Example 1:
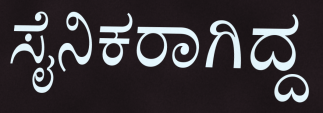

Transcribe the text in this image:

ಸೈನಿಕರಾಗಿದ್ದ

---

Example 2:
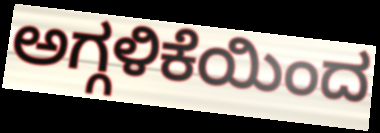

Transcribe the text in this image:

ಅಗ್ಗಳಿಕೆಯಿಂದ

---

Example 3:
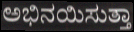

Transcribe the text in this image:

ಅಭಿನಯಿಸುತ್ತಾ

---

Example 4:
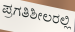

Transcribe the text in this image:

ಪ್ರಗತಿಶೀಲರಲ್ಲಿ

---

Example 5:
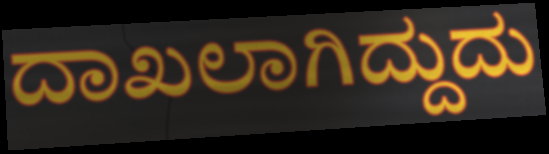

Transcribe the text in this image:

ದಾಖಲಾಗಿದ್ದುದು